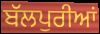
ਬੱਲਪੁਰੀਆਂ